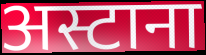
अस्टाना